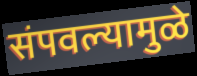
संपवल्यामुळे